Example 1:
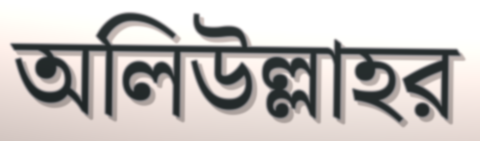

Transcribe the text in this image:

অলিউল্লাহর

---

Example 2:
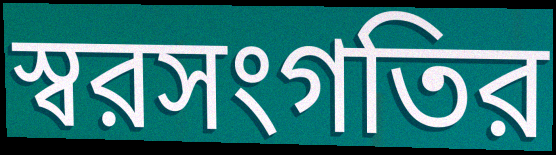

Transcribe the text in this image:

স্বরসংগতির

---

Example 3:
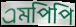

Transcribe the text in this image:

এমপিপি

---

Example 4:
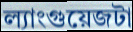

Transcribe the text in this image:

ল্যাংগুয়েজটা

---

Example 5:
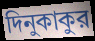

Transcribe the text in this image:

দিনুকাকুর